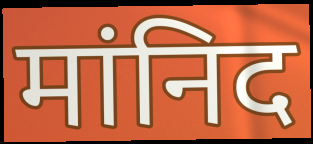
मांनिद